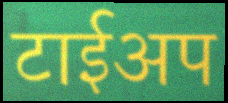
टाईअप